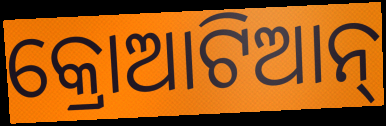
କ୍ରୋଆଟିଆନ୍